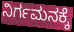
ನಿರ್ಗಮನಕ್ಕೆ